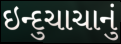
ઇન્દુચાચાનું